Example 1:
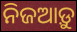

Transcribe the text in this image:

ନିଜଆଡ଼ୁ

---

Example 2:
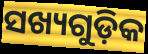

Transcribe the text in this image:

ସଖ୍ୟଗୁଡ଼ିକ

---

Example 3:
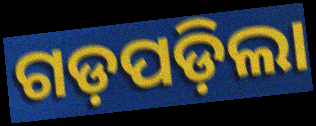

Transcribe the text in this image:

ଗଡ଼ପଡ଼ିଲା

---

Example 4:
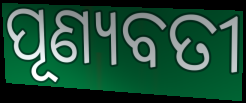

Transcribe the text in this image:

ପୂଣ୍ୟବତୀ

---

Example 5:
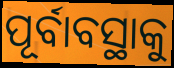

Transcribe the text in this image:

ପୂର୍ବାବସ୍ଥାକୁ